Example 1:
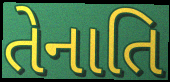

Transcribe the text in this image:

તેનાતિ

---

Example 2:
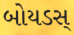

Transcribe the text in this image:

બોયડસ્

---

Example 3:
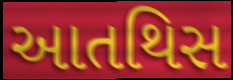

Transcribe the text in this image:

આતથિસ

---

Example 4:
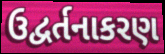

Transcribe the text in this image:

ઉદ્વર્તનાકરણ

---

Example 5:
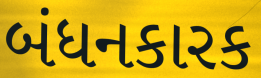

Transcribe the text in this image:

બંધનકારક